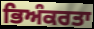
ਭਿਅੰਕਰਤਾ